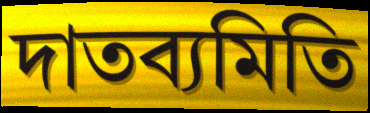
দাতব্যমিতি